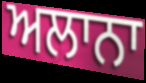
ਅਲਾਨਾ